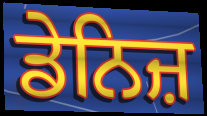
ਡੇਨਿਜ਼